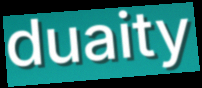
duaity